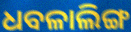
ଧବଳାଲିଙ୍ଗ